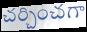
చర్చించగా